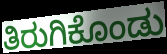
ತಿರುಗಿಕೊಂಡು